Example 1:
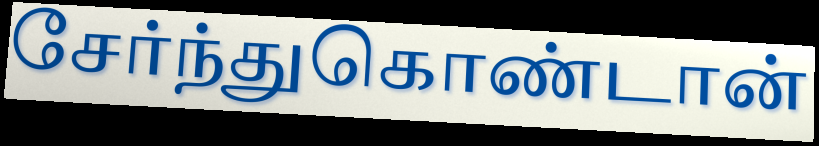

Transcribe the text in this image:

சேர்ந்துகொண்டான்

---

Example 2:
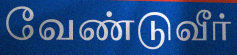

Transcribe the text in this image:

வேண்டுவீர்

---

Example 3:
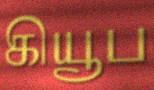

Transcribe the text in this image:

கியூப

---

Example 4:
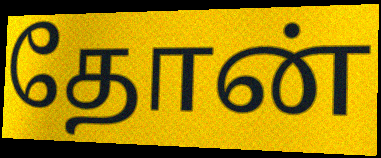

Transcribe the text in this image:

தோன்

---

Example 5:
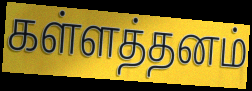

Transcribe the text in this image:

கள்ளத்தனம்